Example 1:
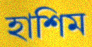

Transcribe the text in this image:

হাশিম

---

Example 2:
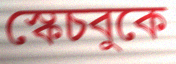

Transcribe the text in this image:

স্কেচবুকে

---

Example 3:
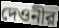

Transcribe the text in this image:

দেওনীর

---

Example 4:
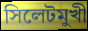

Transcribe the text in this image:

সিলেটমুখী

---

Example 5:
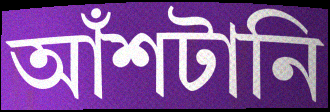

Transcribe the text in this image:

আঁশটানি